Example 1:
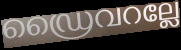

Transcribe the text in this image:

ഡ്രൈവറല്ലേ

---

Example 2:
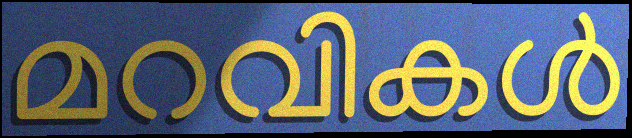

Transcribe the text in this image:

മറവികൾ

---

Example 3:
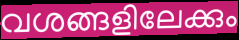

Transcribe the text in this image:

വശങ്ങളിലേക്കും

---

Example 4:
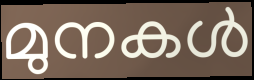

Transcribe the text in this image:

മുനകൾ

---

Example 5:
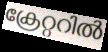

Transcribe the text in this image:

ക്രേറ്ററിൽ